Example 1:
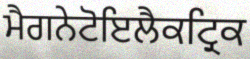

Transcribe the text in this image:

ਮੈਗਨੇਟੋਇਲੈਕਟ੍ਰਿਕ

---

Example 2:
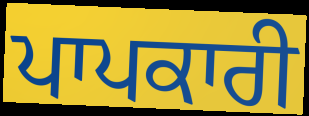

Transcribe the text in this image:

ਪਾਪਕਾਰੀ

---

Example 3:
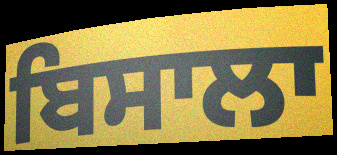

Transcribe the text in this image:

ਬਿਸਾਲਾ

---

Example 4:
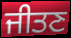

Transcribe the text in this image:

ਜੀਤਣ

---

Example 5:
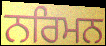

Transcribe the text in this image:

ਨਰਿਮਨ